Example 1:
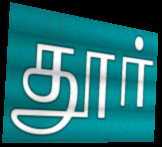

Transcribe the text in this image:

தூர்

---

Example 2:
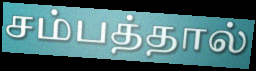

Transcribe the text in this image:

சம்பத்தால்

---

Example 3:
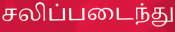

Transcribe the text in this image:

சலிப்படைந்து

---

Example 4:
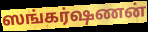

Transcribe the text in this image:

ஸங்கர்ஷணன்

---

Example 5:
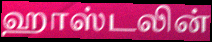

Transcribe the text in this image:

ஹாஸ்டலின்